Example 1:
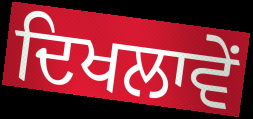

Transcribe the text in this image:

ਦਿਖਲਾਵੇਂ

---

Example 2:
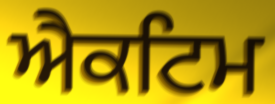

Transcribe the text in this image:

ਐਕਟਿਮ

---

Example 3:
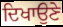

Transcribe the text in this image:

ਦਿਖਾਉਣੇ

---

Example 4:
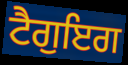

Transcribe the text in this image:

ਟੈਗੁਇਗ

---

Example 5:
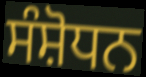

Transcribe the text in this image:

ਸੰਸ਼ੋਧਨ